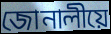
জোনালীয়ে